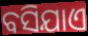
ବସିଯାଏ